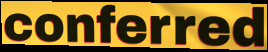
conferred